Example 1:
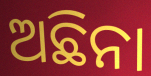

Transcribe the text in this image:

ଅଛିନା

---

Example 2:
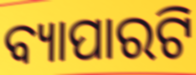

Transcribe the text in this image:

ବ୍ୟାପାରଟି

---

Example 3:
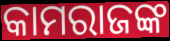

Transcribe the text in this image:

କାମରାଜଙ୍କ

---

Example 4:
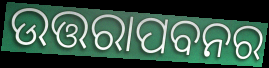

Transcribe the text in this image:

ଉତ୍ତରାପବନର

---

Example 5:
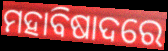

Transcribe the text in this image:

ମହାବିଷାଦରେ